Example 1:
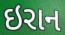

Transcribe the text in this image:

ઇરાન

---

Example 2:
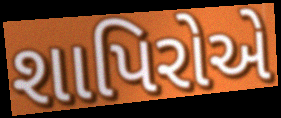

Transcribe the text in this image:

શાપિરોએ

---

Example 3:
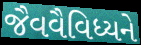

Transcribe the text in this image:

જૈવવૈવિધ્યને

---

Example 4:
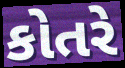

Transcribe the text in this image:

કોતરે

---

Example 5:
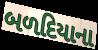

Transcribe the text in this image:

બળદિયાના